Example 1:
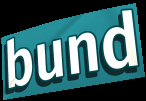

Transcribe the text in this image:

bund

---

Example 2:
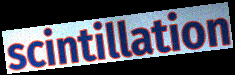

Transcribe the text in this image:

scintillation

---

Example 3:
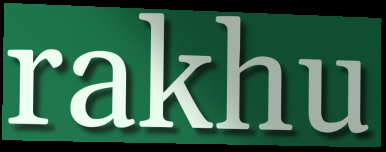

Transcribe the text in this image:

rakhu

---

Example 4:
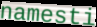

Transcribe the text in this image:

namesti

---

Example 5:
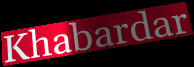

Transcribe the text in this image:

Khabardar